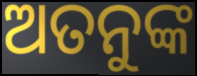
ଅତନୁଙ୍କ